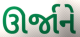
ઊર્જાને